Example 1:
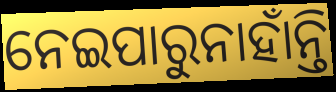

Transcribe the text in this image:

ନେଇପାରୁନାହାଁନ୍ତି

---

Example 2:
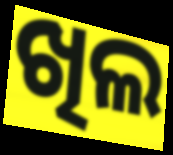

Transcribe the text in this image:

ଖିଲ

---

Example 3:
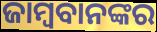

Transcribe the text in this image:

ଜାମ୍ବବାନଙ୍କର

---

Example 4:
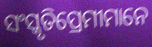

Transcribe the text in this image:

ସଂସ୍କୃତିପ୍ରେମୀମାନେ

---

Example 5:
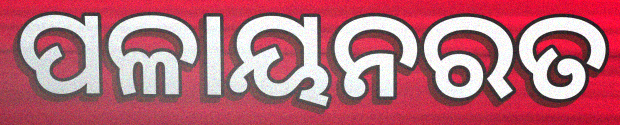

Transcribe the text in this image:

ପଳାୟନରତ